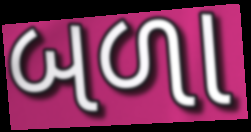
બળા